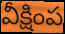
వీక్షింప